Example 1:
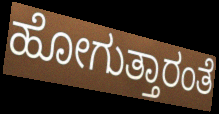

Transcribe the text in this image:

ಹೋಗುತ್ತಾರಂತೆ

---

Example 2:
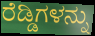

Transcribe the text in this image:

ರೆಡ್ಡಿಗಳನ್ನು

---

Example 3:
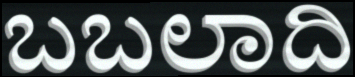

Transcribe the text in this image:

ಬಬಲಾದಿ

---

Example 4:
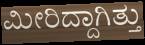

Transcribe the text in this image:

ಮೀರಿದ್ದಾಗಿತ್ತು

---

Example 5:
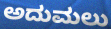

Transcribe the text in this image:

ಅದುಮಲು